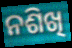
ନଶିଖି